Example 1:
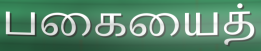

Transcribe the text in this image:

பகையைத்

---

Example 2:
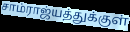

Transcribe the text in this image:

சாம்ராஜ்யத்துக்குள்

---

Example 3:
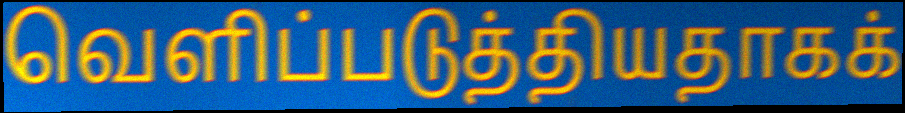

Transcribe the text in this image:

வெளிப்படுத்தியதாகக்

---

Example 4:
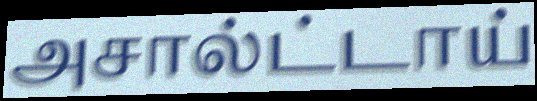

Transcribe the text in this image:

அசால்ட்டாய்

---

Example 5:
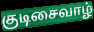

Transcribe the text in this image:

குடிசைவாழ்